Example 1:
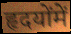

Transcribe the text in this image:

हृदयोंमें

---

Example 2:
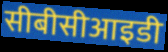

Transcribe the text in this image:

सीबीसीआइडी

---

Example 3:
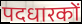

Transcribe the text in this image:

पदधारकों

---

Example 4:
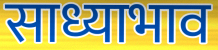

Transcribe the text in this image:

साध्याभाव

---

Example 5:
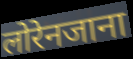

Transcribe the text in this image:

लोरेनजाना